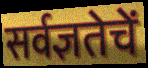
सर्वज्ञतेचें